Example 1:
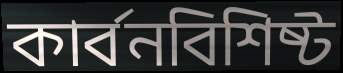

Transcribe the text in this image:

কার্বনবিশিষ্ট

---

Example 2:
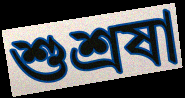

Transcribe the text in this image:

শুশ্রষা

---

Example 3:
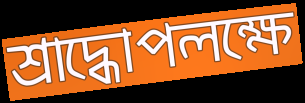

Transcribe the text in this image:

শ্রাদ্ধোপলক্ষে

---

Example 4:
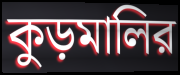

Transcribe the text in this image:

কুড়মালির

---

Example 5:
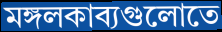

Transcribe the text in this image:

মঙ্গলকাব্যগুলোতে